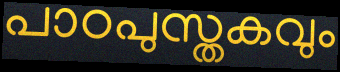
പാഠപുസ്തകവും